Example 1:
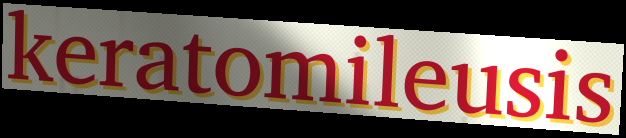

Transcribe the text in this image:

keratomileusis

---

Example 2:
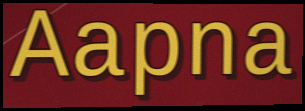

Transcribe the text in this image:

Aapna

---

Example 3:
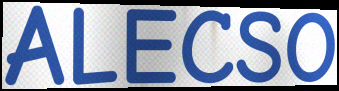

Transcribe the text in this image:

ALECSO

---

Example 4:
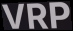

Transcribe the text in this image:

VRP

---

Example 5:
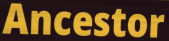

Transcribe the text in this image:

Ancestor